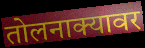
तोलनाक्यावर